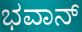
ಭವಾನ್